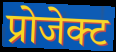
प्रोजेक्ट